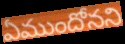
ఏముందోనని